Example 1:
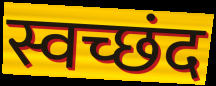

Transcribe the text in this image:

स्वच्छंद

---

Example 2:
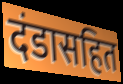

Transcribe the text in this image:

दंडासहित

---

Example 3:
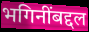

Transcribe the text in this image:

भगिनींबद्दल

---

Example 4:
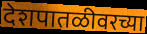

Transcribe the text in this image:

देशपातळीवरच्या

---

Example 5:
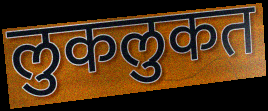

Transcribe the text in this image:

लुकलुकत